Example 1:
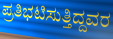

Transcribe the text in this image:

ಪ್ರತಿಭಟಿಸುತ್ತಿದ್ದವರ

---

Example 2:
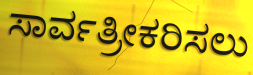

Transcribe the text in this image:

ಸಾರ್ವತ್ರೀಕರಿಸಲು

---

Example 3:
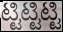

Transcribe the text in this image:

ಟ್ಟಿಟ್ಟಿಟ್ಟಿ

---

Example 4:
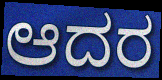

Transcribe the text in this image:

ಆದರ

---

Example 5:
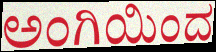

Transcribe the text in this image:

ಅಂಗಿಯಿಂದ